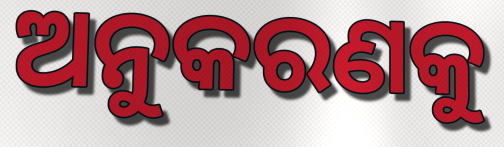
ଅନୁକରଣକୁ